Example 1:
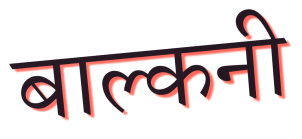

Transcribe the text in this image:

बाल्कनी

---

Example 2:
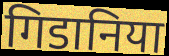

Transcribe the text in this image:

गिडानिया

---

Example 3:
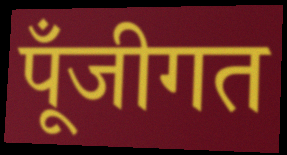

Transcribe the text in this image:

पूँजीगत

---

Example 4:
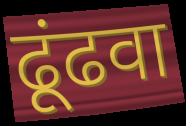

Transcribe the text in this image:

ढूंढवा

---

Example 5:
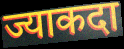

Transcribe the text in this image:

ज्याकदा